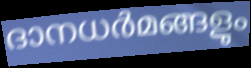
ദാനധർമങ്ങളും